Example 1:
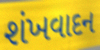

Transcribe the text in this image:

શંખવાદન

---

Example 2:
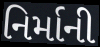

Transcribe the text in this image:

નિર્માની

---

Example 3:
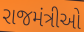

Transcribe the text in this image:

રાજમંત્રીઓ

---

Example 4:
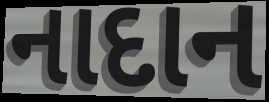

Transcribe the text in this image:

નાદાન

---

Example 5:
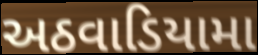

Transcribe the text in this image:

અઠવાડિયામા